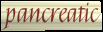
pancreatic